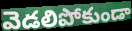
వెడలిపోకుండా